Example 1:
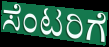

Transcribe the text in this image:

ಸೆಂಟರಿಗೆ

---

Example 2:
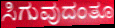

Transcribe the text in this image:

ಸಿಗುವುದಂತೂ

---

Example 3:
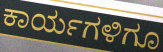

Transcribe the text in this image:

ಕಾರ್ಯಗಳಿಗೂ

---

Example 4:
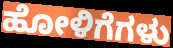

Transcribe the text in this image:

ಹೋಳಿಗೆಗಳು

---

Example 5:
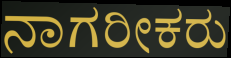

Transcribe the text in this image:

ನಾಗರೀಕರು